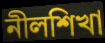
নীলশিখা